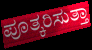
ಪೂತ್ಕರಿಸುತ್ತಾ